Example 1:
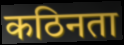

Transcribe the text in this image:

कठिनता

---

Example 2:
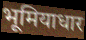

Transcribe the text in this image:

भूमियाधार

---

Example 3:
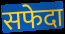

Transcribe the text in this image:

सफेदा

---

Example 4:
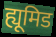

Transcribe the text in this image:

ह्यूमिड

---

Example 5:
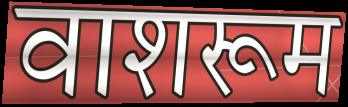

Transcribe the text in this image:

वाशरूम